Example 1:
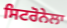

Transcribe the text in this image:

ਸਿਟਰੋਨੇਲਾ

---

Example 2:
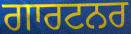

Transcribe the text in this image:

ਗਾਰਟਨਰ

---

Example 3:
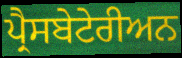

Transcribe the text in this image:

ਪ੍ਰੈਸਬੇਟੇਰੀਅਨ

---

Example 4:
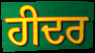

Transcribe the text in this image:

ਹੀਦਰ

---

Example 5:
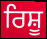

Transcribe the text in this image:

ਰਿਸ਼ੂ